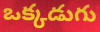
ఒక్కడుగు